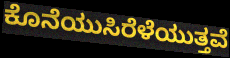
ಕೊನೆಯುಸಿರೆಳೆಯುತ್ತವೆ